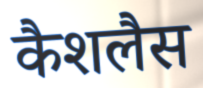
कैशलैस